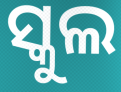
ସ୍କୁଲ